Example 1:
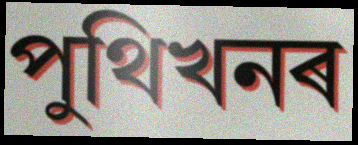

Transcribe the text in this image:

পুথিখনৰ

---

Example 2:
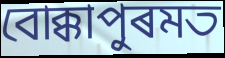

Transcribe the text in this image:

বোক্কাপুৰমত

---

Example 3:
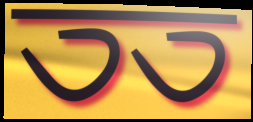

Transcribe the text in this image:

তত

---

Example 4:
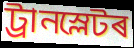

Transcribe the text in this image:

ট্ৰানস্লেটৰ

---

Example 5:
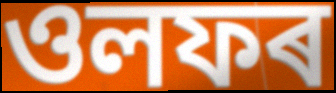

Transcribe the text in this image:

ওলফৰ